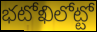
భటోఖిలోట్టో